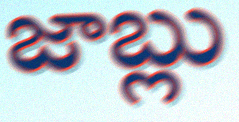
జాబ్లు